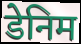
डेनिम